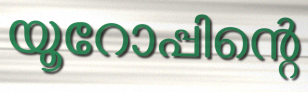
യൂറോപ്പിന്റെ